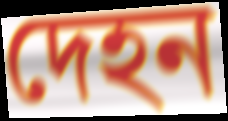
দেহন